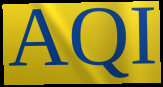
AQI